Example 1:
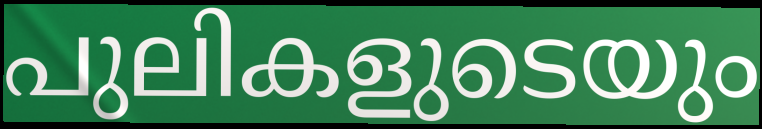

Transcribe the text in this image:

പുലികളുടെയും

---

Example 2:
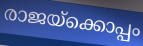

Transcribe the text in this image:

രാജയ്ക്കൊപ്പം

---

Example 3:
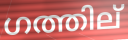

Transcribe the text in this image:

ഗത്തില്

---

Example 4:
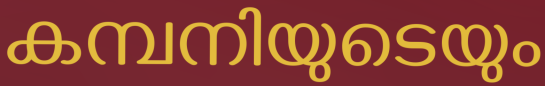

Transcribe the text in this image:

കമ്പനിയുടെയും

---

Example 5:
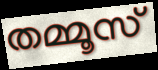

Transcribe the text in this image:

തമ്മൂസ്